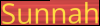
Sunnah